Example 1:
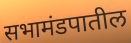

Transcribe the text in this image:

सभामंडपातील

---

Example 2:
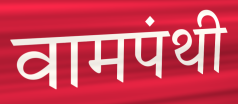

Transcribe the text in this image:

वामपंथी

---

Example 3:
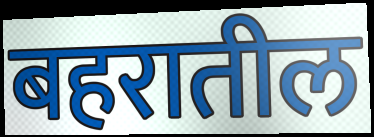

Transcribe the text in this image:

बहरातील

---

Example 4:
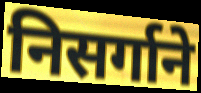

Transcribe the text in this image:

निसर्गाने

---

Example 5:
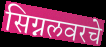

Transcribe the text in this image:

सिग्नलवरचे